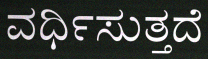
ವರ್ಧಿಸುತ್ತದೆ